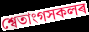
শ্বেতাংগসকলৰ